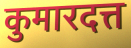
कुमारदत्त